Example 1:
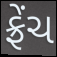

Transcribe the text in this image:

ફ્રેંચ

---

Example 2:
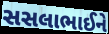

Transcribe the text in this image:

સસલાભાઈને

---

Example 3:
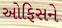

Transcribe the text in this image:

ઓફિસને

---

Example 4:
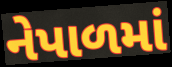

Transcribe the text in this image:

નેપાળમાં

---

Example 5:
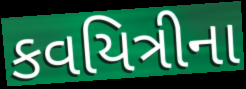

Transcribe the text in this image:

કવયિત્રીના